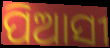
ପିଆସୀ